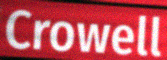
Crowell